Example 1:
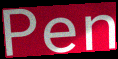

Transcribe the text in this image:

Pen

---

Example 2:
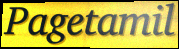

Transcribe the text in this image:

Pagetamil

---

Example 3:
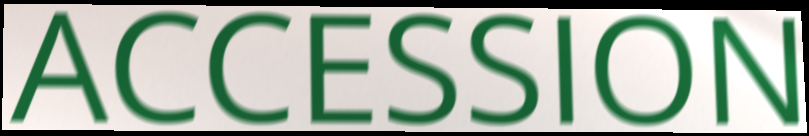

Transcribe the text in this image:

ACCESSION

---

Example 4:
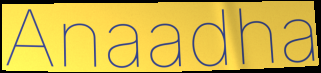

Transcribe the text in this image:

Anaadha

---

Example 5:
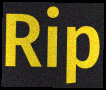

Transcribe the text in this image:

Rip